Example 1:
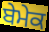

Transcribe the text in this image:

ਬੇਮੇਕ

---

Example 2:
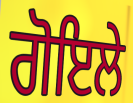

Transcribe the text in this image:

ਗੋਇਲੇ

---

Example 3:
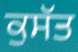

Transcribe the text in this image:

ਕੁਸੱਤ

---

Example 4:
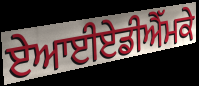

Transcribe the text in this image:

ਏਆਈਏਡੀਐੱਮਕੇ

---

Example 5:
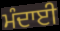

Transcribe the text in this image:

ਮੰਦਾਈ